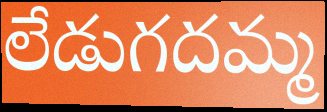
లేడుగదమ్మ